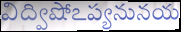
విద్విషోఽప్యనునయ